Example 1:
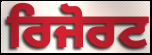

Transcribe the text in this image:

ਰਿਜੋਰਟ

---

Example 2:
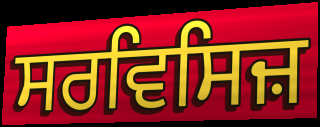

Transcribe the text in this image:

ਸਰਵਿਸਿਜ਼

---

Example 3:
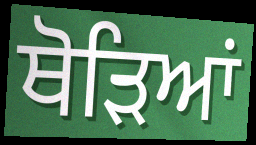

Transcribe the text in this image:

ਥੋੜਿਆਂ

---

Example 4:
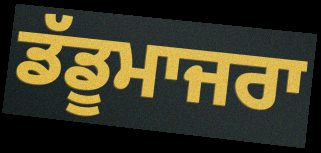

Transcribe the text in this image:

ਡੱਡੂਮਾਜਰਾ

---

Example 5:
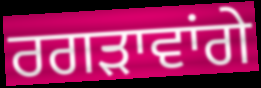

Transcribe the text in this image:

ਰਗੜਾਵਾਂਗੇ